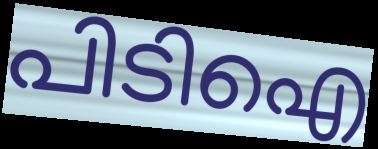
പിടിഐ